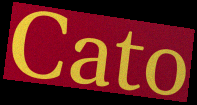
Cato